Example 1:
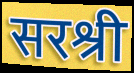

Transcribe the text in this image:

सरश्री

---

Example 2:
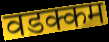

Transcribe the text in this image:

वडक्कम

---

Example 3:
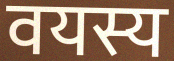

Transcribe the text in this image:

वयस्य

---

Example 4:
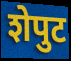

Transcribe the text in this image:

शेपुट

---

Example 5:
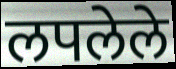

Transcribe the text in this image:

लपलेले